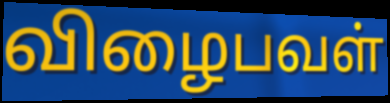
விழைபவள்